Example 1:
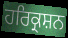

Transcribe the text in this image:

ਹਰਿਕ੍ਰਸ਼ਨ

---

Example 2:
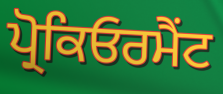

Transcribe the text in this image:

ਪ੍ਰੋਕਿਓਰਮੈਂਟ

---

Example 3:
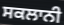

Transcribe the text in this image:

ਸਕਲਾਨੀ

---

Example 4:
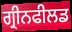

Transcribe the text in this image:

ਗ੍ਰੀਨਫੀਲਡ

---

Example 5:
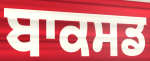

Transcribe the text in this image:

ਬਾਕਸਡ